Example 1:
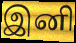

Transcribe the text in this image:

இனி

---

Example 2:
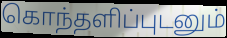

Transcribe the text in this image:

கொந்தளிப்புடனும்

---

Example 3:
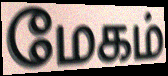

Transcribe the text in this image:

மேகம்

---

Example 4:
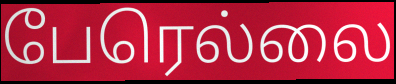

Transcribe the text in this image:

பேரெல்லை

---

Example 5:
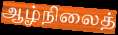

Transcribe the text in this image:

ஆழ்நிலைத்